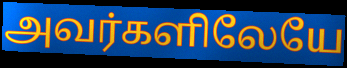
அவர்களிலேயே